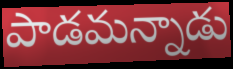
పాడమన్నాడు